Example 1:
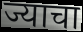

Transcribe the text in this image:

ज्याचा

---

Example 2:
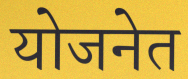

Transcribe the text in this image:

योजनेत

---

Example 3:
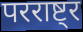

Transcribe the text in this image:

परराष्ट्र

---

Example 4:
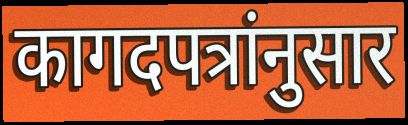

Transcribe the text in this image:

कागदपत्रांनुसार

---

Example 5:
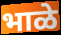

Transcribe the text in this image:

भाळे